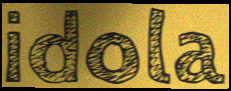
idola